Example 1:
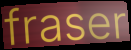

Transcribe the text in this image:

fraser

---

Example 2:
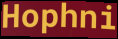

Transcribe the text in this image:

Hophni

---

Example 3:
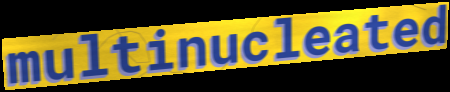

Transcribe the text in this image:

multinucleated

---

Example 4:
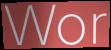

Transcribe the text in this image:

Wor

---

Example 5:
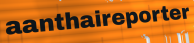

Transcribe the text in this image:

aanthaireporter